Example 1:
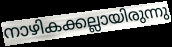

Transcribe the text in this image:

നാഴികക്കല്ലായിരുന്നു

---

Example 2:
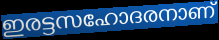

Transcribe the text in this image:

ഇരട്ടസഹോദരനാണ്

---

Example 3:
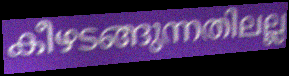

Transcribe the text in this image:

കീഴടങ്ങുന്നതിലല്ല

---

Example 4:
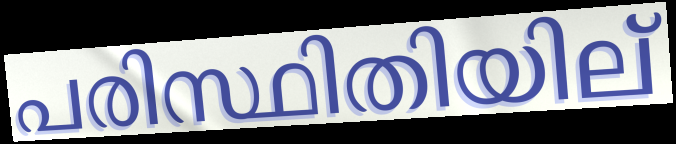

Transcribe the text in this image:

പരിസ്ഥിതിയില്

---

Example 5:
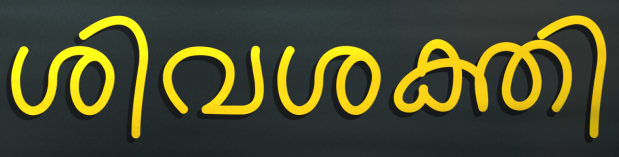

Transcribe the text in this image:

ശിവശക്തി